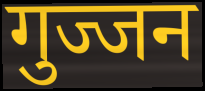
गुज्जन